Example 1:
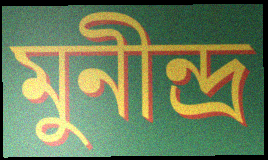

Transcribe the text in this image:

মুনীন্দ্ৰ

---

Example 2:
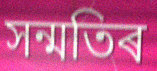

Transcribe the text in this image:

সন্মতিৰ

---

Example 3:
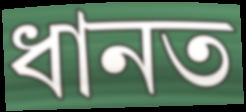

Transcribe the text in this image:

ধানত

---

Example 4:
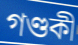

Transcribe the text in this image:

গণ্ডকী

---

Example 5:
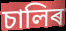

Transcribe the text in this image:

চালিৰ